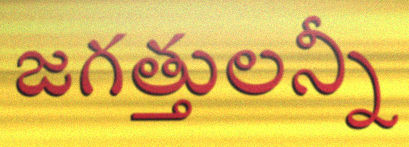
జగత్తులన్నీ